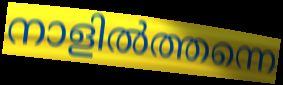
നാളിൽത്തന്നെ